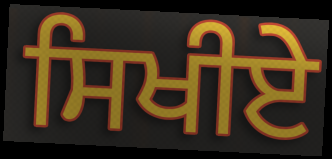
ਸਿਖੀਏ